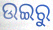
ଉଇରୁ